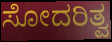
ಸೋದರಿತ್ವ